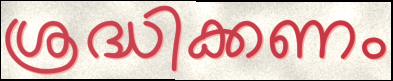
ശ്രദ്ധിക്കണം